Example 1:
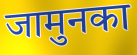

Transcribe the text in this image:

जामुनका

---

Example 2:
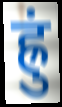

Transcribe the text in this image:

ह्रुं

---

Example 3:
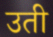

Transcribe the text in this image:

उती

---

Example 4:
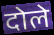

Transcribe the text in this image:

दोले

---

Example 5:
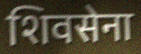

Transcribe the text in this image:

शिवसेना